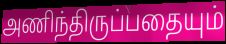
அணிந்திருப்பதையும்